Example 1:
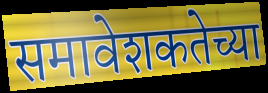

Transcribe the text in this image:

समावेशकतेच्या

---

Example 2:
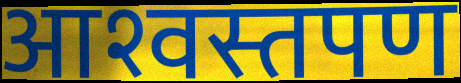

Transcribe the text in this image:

आश्वस्तपण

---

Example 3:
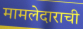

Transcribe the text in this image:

मामलेदाराची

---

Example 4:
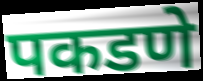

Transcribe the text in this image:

पकडणे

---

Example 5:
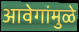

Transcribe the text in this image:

आवेगांमुळे